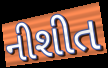
નીશીત